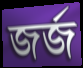
জৰ্জ